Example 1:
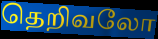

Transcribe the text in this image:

தெறிவலோ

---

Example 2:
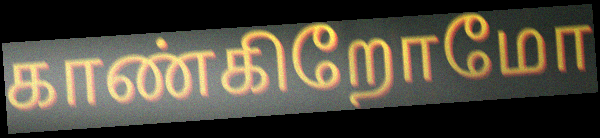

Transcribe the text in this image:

காண்கிறோமோ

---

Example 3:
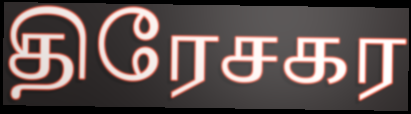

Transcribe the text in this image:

திரேசகர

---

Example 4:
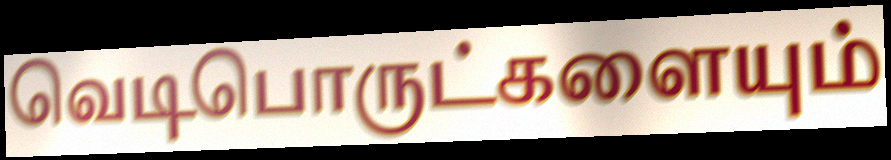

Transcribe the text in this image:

வெடிபொருட்களையும்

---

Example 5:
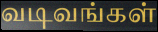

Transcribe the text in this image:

வடிவங்கள்